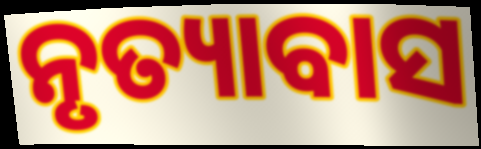
ନୃତ୍ୟାବାସ